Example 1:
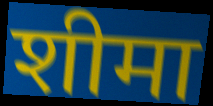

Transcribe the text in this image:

शीमा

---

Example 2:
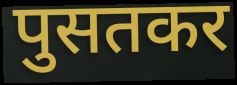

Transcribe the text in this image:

पुसतकर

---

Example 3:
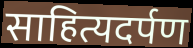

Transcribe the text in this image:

साहित्यदर्पण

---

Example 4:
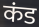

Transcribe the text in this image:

कंड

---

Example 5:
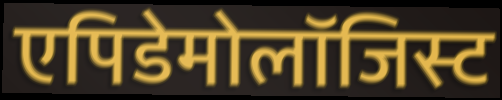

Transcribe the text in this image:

एपिडेमोलॉजिस्ट